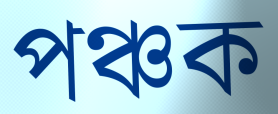
পঞ্চক